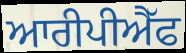
ਆਰੀਪੀਐੱਫ